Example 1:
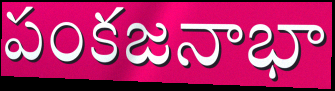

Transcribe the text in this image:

పంకజనాభా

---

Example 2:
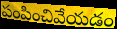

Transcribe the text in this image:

పంపించివేయడం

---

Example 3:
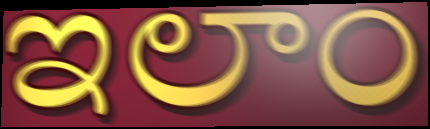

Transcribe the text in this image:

ఇలాం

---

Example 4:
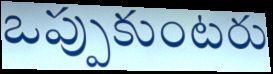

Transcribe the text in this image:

ఒప్పుకుంటరు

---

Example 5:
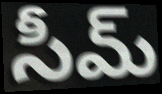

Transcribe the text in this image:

సీమ్